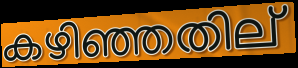
കഴിഞ്ഞതില്